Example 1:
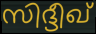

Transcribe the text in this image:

സിദ്ദീഖ്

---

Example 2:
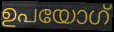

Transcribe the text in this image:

ഉപയോഗ്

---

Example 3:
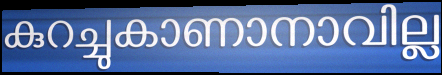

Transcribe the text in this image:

കുറച്ചുകാണാനാവില്ല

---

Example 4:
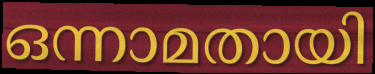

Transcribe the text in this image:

ഒന്നാമതായി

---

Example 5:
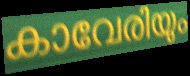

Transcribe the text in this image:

കാവേരിയും